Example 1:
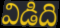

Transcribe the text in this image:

విడిది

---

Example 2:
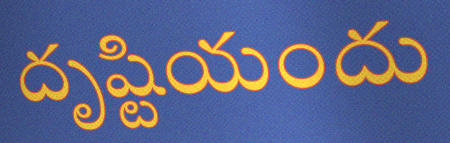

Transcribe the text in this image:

దృష్టియందు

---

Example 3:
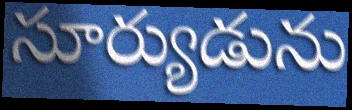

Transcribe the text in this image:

సూర్యుడును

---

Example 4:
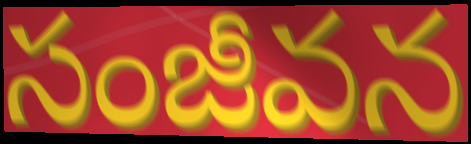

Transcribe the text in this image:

సంజీవన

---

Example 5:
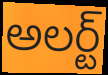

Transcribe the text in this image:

అలర్ట్